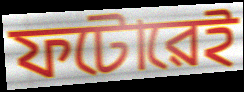
ফটোৱেই